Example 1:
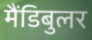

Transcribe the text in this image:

मैंडिबुलर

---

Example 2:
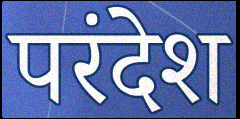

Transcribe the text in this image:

परंदेश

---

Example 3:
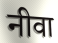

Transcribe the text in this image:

नीवा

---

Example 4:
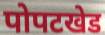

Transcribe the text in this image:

पोपटखेड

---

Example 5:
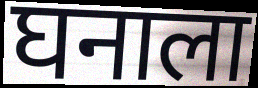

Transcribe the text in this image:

घनाला